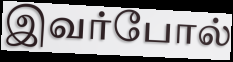
இவர்போல்